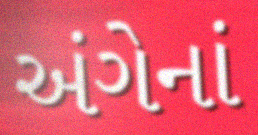
અંગેનાં